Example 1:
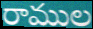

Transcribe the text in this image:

రాముల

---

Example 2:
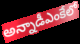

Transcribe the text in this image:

అన్నాడీఎంకేలో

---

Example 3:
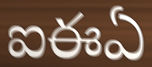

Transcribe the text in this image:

ఐఈఏ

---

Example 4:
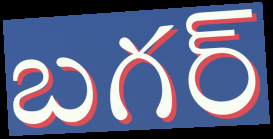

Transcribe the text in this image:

బగర్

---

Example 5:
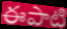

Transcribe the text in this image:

ఈపాటి